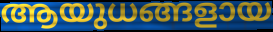
ആയുധങ്ങളായ